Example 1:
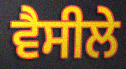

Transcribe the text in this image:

ਵੈਸੀਲੇ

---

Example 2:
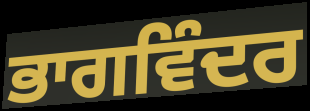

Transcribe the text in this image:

ਭਾਗਵਿੰਦਰ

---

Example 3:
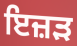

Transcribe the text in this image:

ਇਜ਼ੜ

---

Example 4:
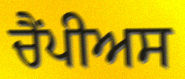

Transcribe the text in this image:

ਚੈਂਪੀਅਸ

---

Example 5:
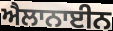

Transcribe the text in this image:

ਐਲਾਨਾਈਨ